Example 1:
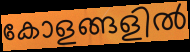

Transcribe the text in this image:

കോളങ്ങളിൽ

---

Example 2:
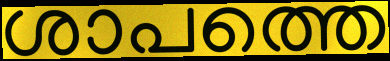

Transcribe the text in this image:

ശാപത്തെ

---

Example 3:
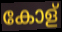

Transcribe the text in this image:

കോള്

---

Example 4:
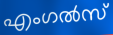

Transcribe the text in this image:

എംഗൽസ്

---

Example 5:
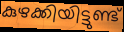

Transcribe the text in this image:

കുഴക്കിയിട്ടുണ്ട്